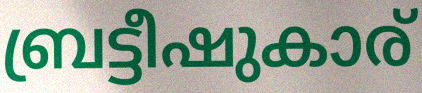
ബ്രട്ടീഷുകാര്